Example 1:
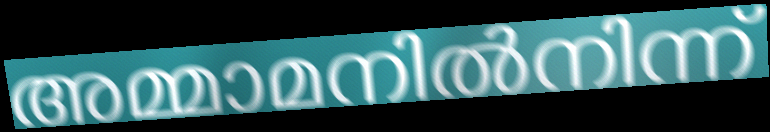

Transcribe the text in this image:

അമ്മാമനിൽനിന്ന്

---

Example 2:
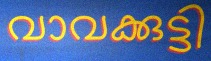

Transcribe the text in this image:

വാവക്കുട്ടി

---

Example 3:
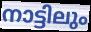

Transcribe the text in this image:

നാട്ടിലും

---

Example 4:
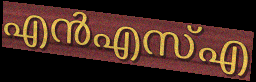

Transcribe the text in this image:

എൻഎസ്എ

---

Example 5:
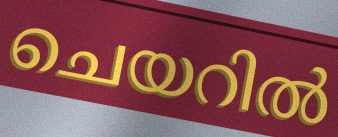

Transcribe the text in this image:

ചെയറിൽ